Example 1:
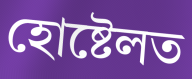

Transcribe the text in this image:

হোষ্টেলত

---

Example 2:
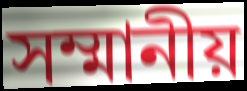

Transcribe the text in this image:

সম্মানীয়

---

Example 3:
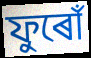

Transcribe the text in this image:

ফুৰোঁ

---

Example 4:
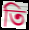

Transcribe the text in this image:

তি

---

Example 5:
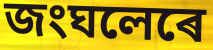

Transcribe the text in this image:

জংঘলেৰে